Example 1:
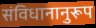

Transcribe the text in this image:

संविधानानुरूप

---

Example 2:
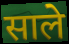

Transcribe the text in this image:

साले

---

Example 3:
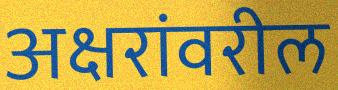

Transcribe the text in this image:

अक्षरांवरील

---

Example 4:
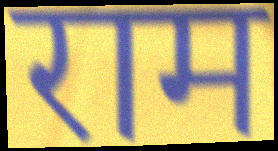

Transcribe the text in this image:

राम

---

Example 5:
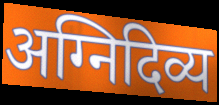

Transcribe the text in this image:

अग्निदिव्य